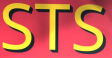
STS